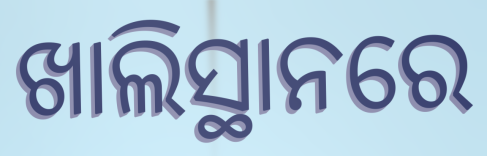
ଖାଲିସ୍ଥାନରେ